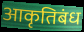
आकृतिबंध